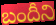
బందీని